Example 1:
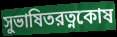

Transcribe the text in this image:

সুভাষিতরত্নকোষ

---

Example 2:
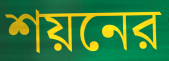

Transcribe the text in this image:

শয়নের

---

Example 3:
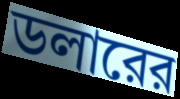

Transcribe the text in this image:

ডলারের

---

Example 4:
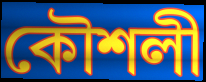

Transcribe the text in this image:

কৌশলী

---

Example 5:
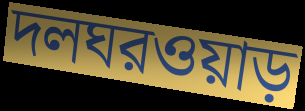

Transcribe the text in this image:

দলঘরওয়াড়